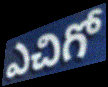
ఎచిగో